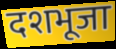
दशभूजा